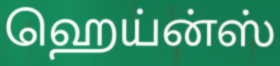
ஹெய்ன்ஸ்